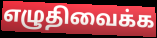
எழுதிவைக்க